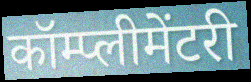
कॉम्प्लीमेंटरी